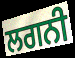
ਲਗਨੀ